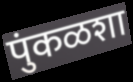
पुंकळशा